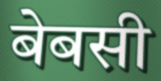
बेबसी